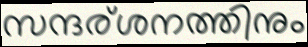
സന്ദര്ശനത്തിനും